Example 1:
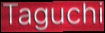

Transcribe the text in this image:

Taguchi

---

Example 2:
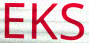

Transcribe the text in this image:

EKS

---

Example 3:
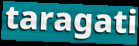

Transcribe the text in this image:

taragati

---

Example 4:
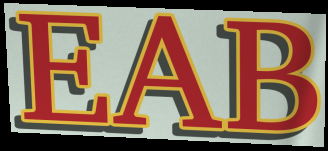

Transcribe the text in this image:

EAB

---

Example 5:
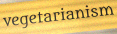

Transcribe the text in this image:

vegetarianism